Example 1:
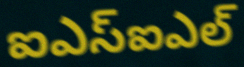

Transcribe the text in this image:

ఐఎస్ఐఎల్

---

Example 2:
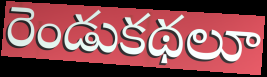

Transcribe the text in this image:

రెండుకథలూ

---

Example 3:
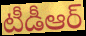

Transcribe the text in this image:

టీడీఆర్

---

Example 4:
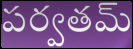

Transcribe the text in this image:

పర్వతమ్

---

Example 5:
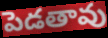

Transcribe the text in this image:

పెడతావు